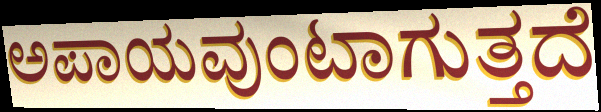
ಅಪಾಯವುಂಟಾಗುತ್ತದೆ